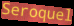
Seroquel